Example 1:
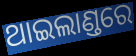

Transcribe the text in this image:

ଥାଇଲାଣ୍ଡରେ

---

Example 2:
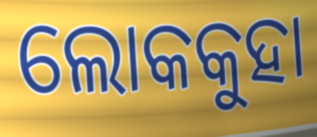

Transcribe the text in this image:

ଲୋକକୁହା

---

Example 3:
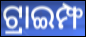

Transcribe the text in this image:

ଟ୍ରାଇମ୍ଫ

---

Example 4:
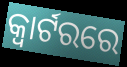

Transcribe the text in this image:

କ୍ୱାର୍ଟରରେ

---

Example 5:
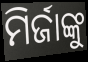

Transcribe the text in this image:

ମିର୍ଜାଙ୍କୁ